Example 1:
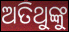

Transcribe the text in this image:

ଅତିଥୁଙ୍କୁ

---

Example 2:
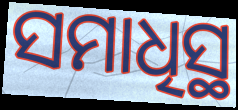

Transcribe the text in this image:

ସମାଧିସ୍ଥ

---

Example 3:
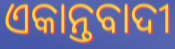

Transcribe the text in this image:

ଏକାନ୍ତବାଦୀ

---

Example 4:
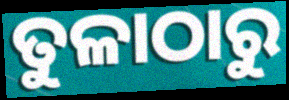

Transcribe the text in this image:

ତୁଳାଠାରୁ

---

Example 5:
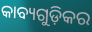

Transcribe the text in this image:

କାବ୍ୟଗୁଡ଼ିକର